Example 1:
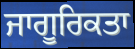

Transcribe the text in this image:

ਜਾਗੂਰਿਕਤਾ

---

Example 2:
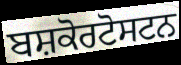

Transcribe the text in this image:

ਬਸ਼ਕੋਰਟੋਸਟਨ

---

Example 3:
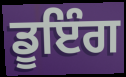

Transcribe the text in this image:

ਡੂਇੰਗ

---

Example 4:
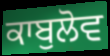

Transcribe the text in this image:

ਕਾਬੁਲੋਵ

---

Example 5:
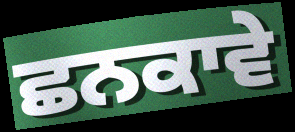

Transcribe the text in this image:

ਛਨਕਾਵੇ